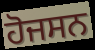
ਹੋਜਸਨ